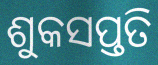
ଶୁକସପ୍ତତି